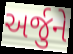
અર્જુને